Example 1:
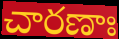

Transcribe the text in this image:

చారణాః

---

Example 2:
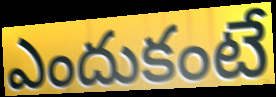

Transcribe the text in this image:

ఎందుకంటే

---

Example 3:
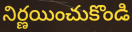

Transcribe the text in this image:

నిర్ణయించుకొండి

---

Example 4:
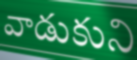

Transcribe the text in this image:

వాడుకుని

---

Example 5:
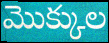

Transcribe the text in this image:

మొక్కుల